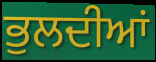
ਭੁਲਦੀਆਂ